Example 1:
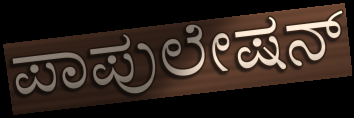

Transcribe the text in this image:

ಪಾಪುಲೇಷನ್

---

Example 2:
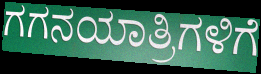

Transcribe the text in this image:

ಗಗನಯಾತ್ರಿಗಳಿಗೆ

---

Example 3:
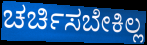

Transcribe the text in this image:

ಚರ್ಚಿಸಬೇಕಿಲ್ಲ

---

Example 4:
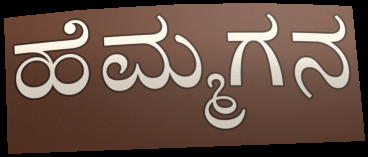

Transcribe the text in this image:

ಹೆಮ್ಮಗನ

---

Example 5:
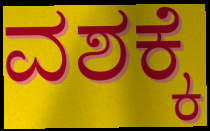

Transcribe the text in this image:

ವಶಕ್ಕೆ